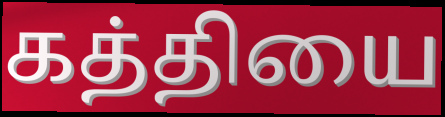
கத்தியை